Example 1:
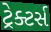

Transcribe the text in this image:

ટ્રેક્ટર્સ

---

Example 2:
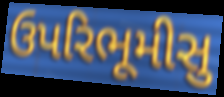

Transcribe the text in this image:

ઉપરિભૂમીસુ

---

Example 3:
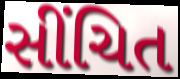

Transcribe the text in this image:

સીંચિત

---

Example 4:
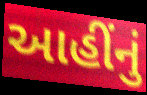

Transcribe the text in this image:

આહીંનું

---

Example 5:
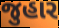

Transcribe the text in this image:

જુહાર